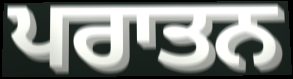
ਪਰਾਤਨ